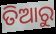
ତିଆରୁ